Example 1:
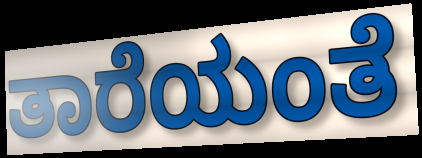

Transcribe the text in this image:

ತಾರೆಯಂತೆ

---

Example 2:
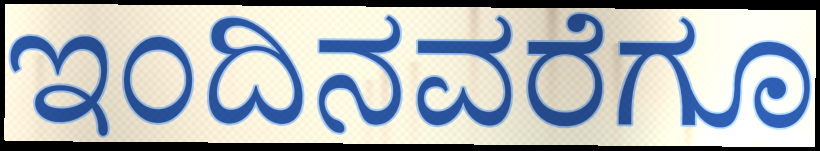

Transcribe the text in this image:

ಇಂದಿನವರೆಗೂ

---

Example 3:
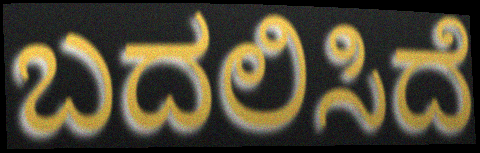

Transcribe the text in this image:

ಬದಲಿಸಿದೆ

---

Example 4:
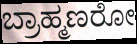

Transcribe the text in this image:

ಬ್ರಾಹ್ಮಣರೋ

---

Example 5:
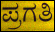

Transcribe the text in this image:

ಪ್ರಗತಿ